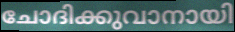
ചോദിക്കുവാനായി